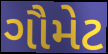
ગૌમેટ